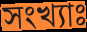
সংখ্যাঃ